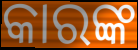
କାରଙ୍କ